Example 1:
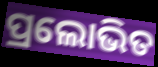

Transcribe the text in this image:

ପ୍ରଲୋଭିତ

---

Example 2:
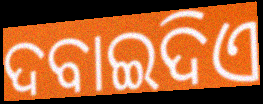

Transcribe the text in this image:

ଦବାଇଦିଏ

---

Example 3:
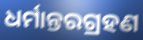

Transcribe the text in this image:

ଧର୍ମାନ୍ତରଗ୍ରହଣ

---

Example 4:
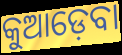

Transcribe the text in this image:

କୁଆଡ଼େବା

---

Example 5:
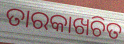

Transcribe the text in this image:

ତାରକାଖଚିତ